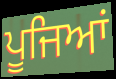
ਪੂਜਿਆਂ